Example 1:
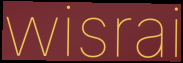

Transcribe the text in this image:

wisrai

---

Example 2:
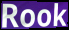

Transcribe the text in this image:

Rook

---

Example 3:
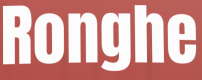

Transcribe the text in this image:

Ronghe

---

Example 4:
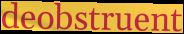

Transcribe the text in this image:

deobstruent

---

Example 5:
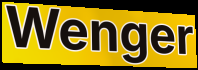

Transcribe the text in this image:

Wenger